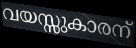
വയസ്സുകാരന്